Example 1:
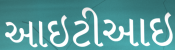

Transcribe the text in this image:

આઇટીઆઇ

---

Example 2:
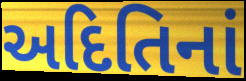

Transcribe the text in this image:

અદિતિનાં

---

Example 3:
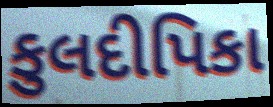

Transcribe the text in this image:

કુલદીપિકા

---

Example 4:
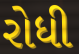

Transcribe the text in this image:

રોધી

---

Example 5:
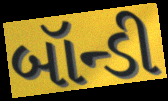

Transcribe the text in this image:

બૉન્ડી